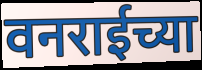
वनराईच्या